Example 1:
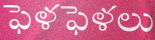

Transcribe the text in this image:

ఫెళఫెళలు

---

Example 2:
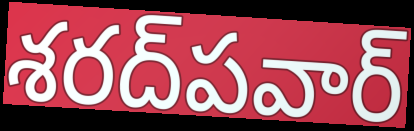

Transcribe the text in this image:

శరద్‌పవార్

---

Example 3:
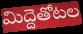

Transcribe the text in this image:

మిద్దెతోటల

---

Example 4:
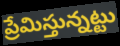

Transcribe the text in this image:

ప్రేమిస్తున్నట్టు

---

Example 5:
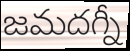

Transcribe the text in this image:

జమదగ్నీ